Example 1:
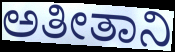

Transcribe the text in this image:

ಅತೀತಾನಿ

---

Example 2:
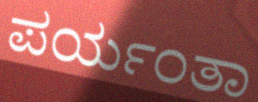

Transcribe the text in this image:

ಪರ್ಯಂತಾ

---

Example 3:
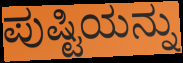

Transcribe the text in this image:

ಪುಷ್ಟಿಯನ್ನು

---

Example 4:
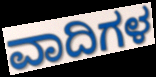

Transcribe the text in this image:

ವಾದಿಗಳ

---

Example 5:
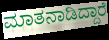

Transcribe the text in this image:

ಮಾತನಾಡಿದ್ದಾರೆ